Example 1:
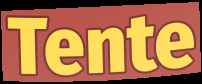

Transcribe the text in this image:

Tente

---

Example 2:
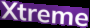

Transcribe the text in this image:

Xtreme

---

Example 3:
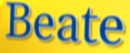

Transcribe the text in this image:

Beate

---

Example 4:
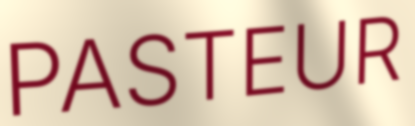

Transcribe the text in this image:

PASTEUR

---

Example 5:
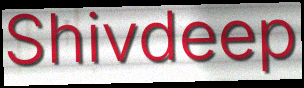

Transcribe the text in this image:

Shivdeep